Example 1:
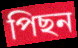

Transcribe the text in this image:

পিছন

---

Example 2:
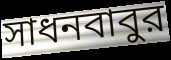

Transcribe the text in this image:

সাধনবাবুর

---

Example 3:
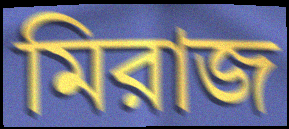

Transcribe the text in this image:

মিরাজ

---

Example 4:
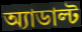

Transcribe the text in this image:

অ্যাডাল্ট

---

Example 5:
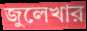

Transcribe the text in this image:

জুলেখার